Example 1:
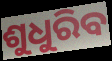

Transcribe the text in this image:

ଶୁଧୁରିବ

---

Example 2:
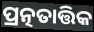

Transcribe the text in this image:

ପ୍ରତ୍ନତାତ୍ତିକ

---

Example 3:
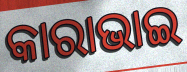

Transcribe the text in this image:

କାରାଭାଇ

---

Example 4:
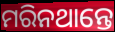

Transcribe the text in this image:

ମରିନଥାନ୍ତେ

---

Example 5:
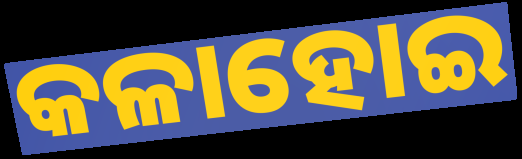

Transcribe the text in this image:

କଳାହୋଇ